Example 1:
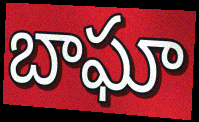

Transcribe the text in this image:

బాఘా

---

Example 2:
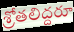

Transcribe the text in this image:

శ్రోతలిద్దరూ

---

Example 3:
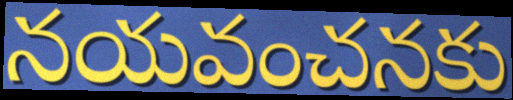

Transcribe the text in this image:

నయవంచనకు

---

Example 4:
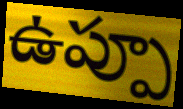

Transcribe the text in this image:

ఉప్పూ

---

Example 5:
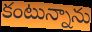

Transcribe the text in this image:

కంటున్నాను